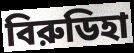
বিরুডিহা